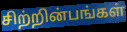
சிற்றின்பங்கள்